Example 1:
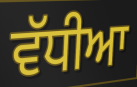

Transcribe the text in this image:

ਵੱਧੀਆ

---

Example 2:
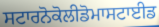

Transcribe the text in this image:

ਸਟਾਰਨੋਕੋਲੀਡੋਮਾਸਟਾਈਡ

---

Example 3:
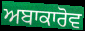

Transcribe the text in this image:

ਅਬਾਕਾਰੋਵ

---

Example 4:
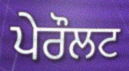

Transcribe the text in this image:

ਪੇਰੌਲਟ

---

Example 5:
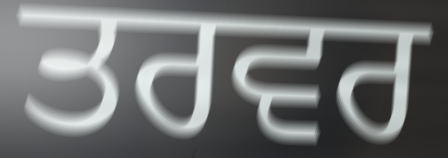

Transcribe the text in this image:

ਤਰਵਰ